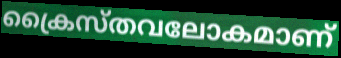
ക്രൈസ്തവലോകമാണ്